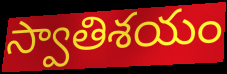
స్వాతిశయం